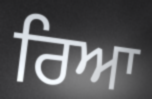
ਰਿਆ